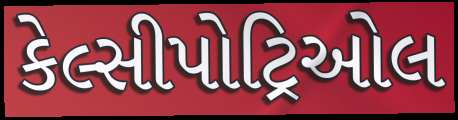
કેલ્સીપોટ્રિઓલ